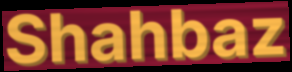
Shahbaz